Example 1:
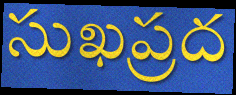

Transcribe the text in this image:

సుఖప్రద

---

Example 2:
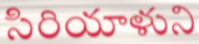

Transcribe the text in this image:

సిరియాళుని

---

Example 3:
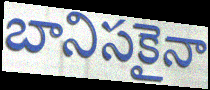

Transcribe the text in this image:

బానిసకైనా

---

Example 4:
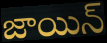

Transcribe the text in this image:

జాయిన్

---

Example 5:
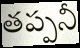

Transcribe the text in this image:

తప్పనీ